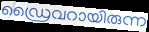
ഡ്രൈവറായിരുന്ന